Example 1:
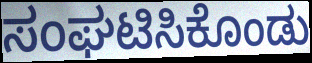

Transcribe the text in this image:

ಸಂಘಟಿಸಿಕೊಂಡು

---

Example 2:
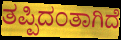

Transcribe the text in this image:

ತಪ್ಪಿದಂತಾಗಿದೆ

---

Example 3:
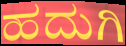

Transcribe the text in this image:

ಹದುಗಿ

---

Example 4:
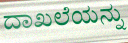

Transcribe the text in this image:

ದಾಖಲೆಯನ್ನು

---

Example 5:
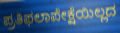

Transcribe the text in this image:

ಪ್ರತಿಫಲಾಪೇಕ್ಷೆಯಿಲ್ಲದ